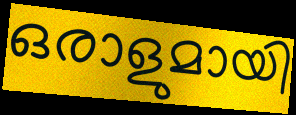
ഒരാളുമായി